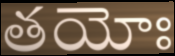
తయోః